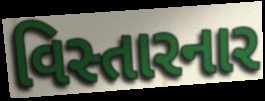
વિસ્તારનાર